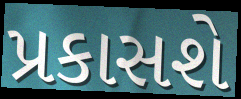
પ્રકાસશે